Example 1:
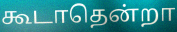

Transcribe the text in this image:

கூடாதென்றா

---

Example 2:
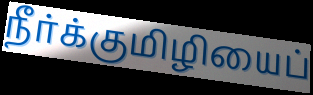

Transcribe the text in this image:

நீர்க்குமிழியைப்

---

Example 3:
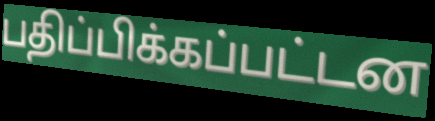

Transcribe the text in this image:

பதிப்பிக்கப்பட்டன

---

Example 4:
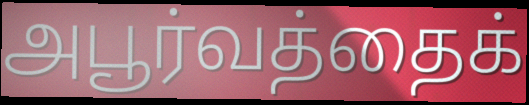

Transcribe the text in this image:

அபூர்வத்தைக்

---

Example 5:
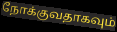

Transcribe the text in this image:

நோக்குவதாகவும்